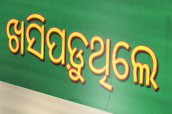
ଖସିପଡ଼ୁଥିଲେ